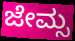
ಜೇಮ್ಸ